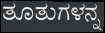
ತೂತುಗಳನ್ನ